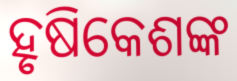
ହୃଷିକେଶଙ୍କ